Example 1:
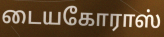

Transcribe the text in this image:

டையகோராஸ்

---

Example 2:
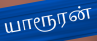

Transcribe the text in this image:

யாரூரன்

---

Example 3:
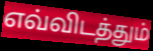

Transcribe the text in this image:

எவ்விடத்தும்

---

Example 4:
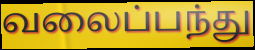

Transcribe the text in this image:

வலைப்பந்து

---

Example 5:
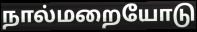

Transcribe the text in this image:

நால்மறையோடு